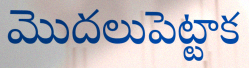
మొదలుపెట్టాక